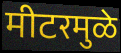
मीटरमुळे